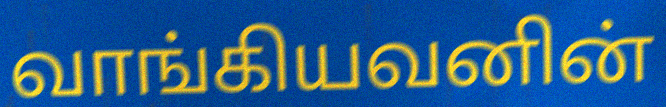
வாங்கியவனின்